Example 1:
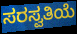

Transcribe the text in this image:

ಸರಸ್ವತಿಯೆ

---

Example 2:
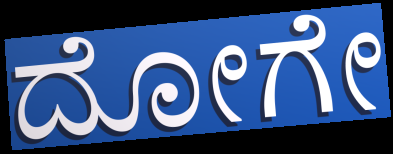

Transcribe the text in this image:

ದೋಗೇ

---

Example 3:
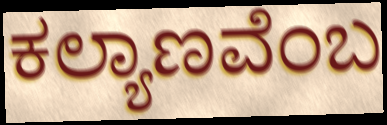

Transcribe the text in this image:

ಕಲ್ಯಾಣವೆಂಬ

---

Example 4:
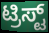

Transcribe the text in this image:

ಟ್ರಿಸ್ಟ್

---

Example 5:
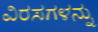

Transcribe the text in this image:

ವಿರಸಗಳನ್ನು